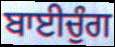
ਬਾਈਚੁੰਗ